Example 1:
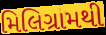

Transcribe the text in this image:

મિલિગ્રામથી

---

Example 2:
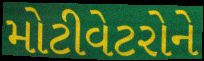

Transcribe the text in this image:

મોટીવેટરોને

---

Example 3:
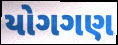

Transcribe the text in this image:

યોગગણ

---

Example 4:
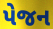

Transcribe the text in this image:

પેજન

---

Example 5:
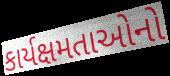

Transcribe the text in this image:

કાર્યક્ષમતાઓનો